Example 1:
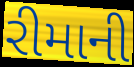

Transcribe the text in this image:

રીમાની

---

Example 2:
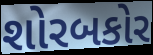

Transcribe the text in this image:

શોરબકોર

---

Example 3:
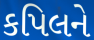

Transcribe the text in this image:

કપિલને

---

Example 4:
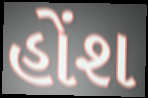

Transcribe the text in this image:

હોંશ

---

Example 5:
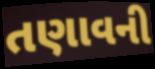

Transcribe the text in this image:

તણાવની